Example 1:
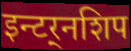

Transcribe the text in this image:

इन्टर्नशिप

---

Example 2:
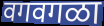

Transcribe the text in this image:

वगवगळा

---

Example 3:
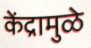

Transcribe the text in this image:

केंद्रामुळे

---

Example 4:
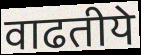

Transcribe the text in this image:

वाढतीये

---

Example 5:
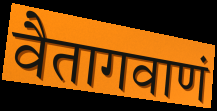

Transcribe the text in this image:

वैतागवाणं